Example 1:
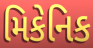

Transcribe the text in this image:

મિકેનિક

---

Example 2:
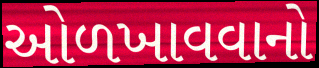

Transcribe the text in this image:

ઓળખાવવાનો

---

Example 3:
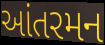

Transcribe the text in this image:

આંતરમન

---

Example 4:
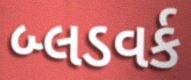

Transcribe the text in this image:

બ્લડવર્ક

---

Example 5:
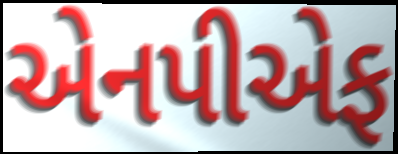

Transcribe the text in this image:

એનપીએફ